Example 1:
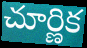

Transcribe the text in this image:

చూర్ణిక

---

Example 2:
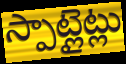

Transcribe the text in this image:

స్పాట్లైట్లు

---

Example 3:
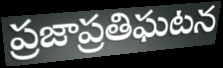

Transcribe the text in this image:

ప్రజాప్రతిఘటన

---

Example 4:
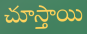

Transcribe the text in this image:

చూస్తాయి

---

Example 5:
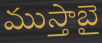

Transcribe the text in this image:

ముస్తాబై